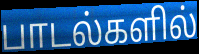
பாடல்களில்